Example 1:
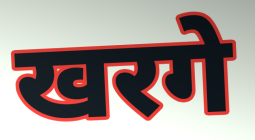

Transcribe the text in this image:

खरगे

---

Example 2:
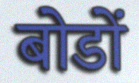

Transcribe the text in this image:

बोडों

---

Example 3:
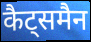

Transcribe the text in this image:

कैट्समैन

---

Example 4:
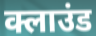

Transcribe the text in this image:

क्लाउंड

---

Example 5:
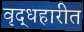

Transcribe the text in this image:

वृद्धहारीत